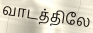
வாடத்திலே